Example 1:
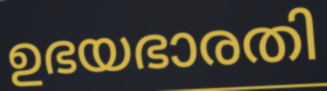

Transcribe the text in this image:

ഉഭയഭാരതി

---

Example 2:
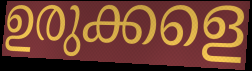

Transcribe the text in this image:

ഉരുക്കളെ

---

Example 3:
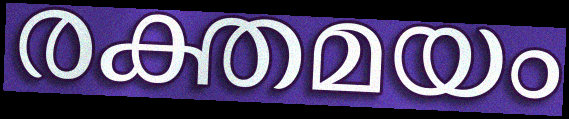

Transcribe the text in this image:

രക്തമയം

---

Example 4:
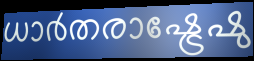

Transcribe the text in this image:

ധാർതരാഷ്ട്രേഷു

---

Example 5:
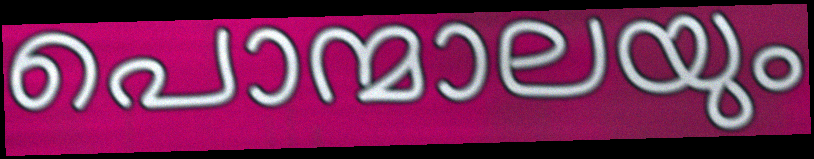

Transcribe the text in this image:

പൊന്മാലയും